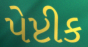
પેપ્ટીક